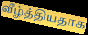
வீழ்த்தியதாக